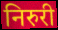
निरुरी